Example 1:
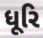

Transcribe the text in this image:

ધૂરિ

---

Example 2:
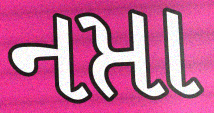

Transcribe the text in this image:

નપ્તા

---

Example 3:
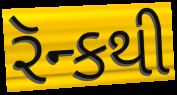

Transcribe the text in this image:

રૅન્કથી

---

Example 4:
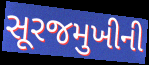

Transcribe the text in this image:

સૂરજમુખીની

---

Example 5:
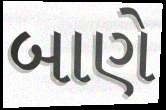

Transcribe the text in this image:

બાણે